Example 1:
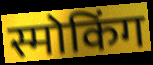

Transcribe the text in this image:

स्‍मोकिंग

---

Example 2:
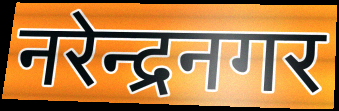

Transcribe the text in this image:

नरेन्द्रनगर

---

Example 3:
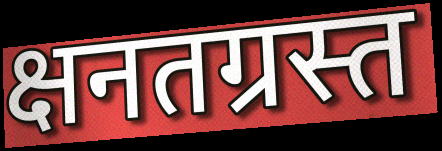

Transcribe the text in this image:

क्षनतग्रस्त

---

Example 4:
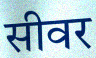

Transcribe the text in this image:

सीवर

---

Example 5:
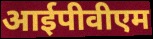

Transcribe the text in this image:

आईपीवीएम